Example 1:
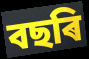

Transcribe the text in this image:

বছৰি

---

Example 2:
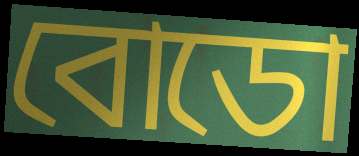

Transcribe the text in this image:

বোডো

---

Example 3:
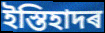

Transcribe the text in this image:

ইস্তিহাদৰ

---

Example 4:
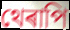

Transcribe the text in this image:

থেৰাপি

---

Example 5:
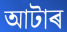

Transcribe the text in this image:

আটাৰ